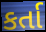
કર્તા